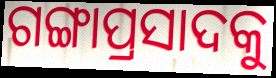
ଗଙ୍ଗାପ୍ରସାଦକୁ